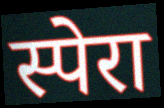
स्पेरा